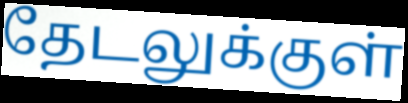
தேடலுக்குள்